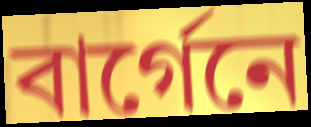
বার্গেনে